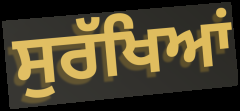
ਸੁਰੱਖਿਆਂ